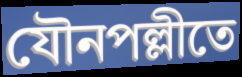
যৌনপল্লীতে